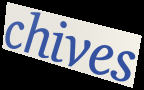
chives